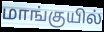
மாங்குயில்